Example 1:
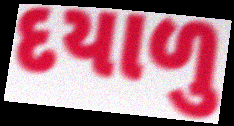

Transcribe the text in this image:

દયાળુ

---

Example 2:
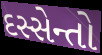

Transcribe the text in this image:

દસ્સેન્તો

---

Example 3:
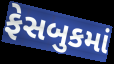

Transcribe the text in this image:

ફેસબુકમાં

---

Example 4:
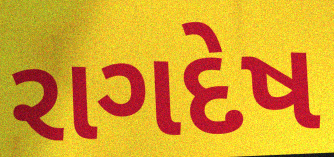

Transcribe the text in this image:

રાગદેષ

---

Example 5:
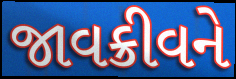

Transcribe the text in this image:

જાવક્રીવને